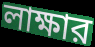
লাক্ষার